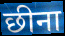
छीना